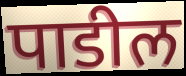
पाडील